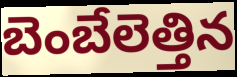
బెంబేలెత్తిన